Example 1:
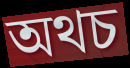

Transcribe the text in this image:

অথচ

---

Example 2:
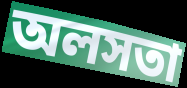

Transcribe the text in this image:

অলসতা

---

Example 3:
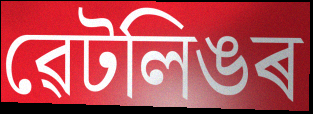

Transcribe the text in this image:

ৱেটলিঙৰ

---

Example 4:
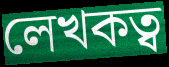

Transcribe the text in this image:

লেখকত্ব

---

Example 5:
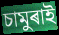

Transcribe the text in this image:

চামুৰাই